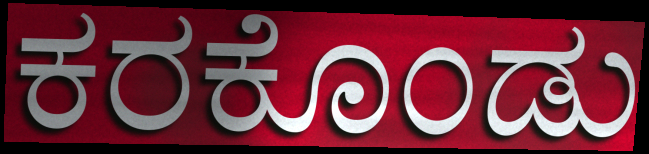
ಕರಕೊಂಡು